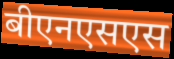
बीएनएसएस